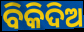
ବିକିଦିଅ